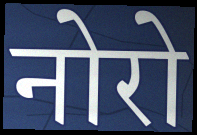
नोरो